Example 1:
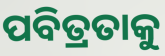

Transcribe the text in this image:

ପବିତ୍ରତାକୁ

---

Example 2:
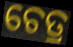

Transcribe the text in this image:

ଚେତ୍ର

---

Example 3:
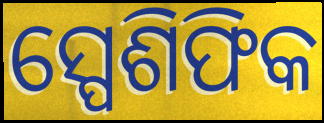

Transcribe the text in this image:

ସ୍ପେଶିଫିକ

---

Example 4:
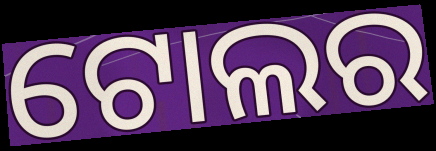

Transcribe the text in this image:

ଟୋଲର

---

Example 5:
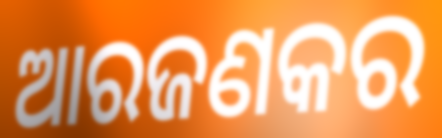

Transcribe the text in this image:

ଆରଜଣକର